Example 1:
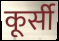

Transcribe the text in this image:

कूर्सी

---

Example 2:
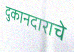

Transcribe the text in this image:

दुकानदाराचे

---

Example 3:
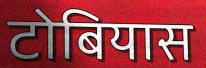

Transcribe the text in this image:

टोबियास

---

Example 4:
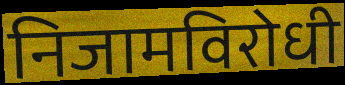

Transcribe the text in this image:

निजामविरोधी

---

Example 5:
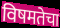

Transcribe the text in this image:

विषमतेचा